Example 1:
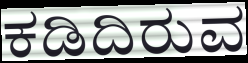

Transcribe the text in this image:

ಕಡಿದಿರುವ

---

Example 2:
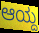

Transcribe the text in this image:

ಆಯ್ದ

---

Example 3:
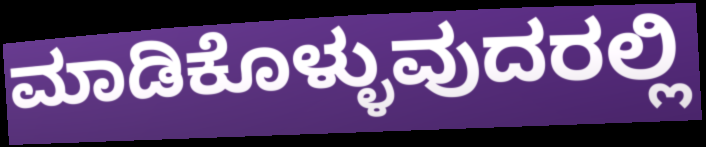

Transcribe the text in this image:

ಮಾಡಿಕೊಳ್ಳುವುದರಲ್ಲಿ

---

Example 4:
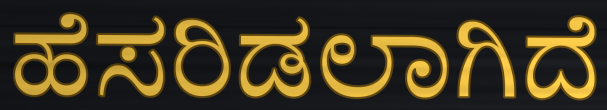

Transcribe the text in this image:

ಹೆಸರಿಡಲಾಗಿದೆ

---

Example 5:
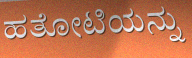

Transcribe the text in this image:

ಹತೋಟಿಯನ್ನು